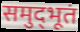
समुद्भूतं